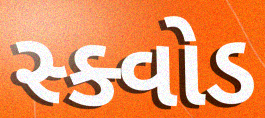
સ્ક્વોડ